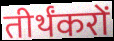
तीर्थंकरों